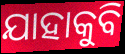
ଯାହାକୁବି